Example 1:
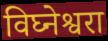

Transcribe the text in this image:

विघ्नेश्वरा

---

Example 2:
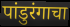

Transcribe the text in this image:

पांडुरंगाचा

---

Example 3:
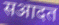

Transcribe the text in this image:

सआदत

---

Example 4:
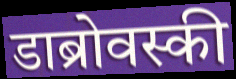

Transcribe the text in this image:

डाब्रोवस्की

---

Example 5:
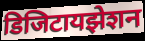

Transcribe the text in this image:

डिजिटायझेशन